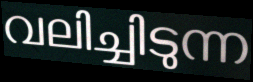
വലിച്ചിടുന്ന